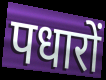
पधारों